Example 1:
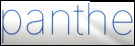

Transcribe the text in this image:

panthe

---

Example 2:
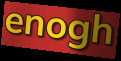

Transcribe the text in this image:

enogh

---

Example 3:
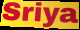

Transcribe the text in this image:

Sriya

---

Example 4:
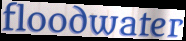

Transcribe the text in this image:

floodwater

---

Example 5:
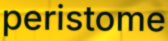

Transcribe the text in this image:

peristome